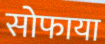
सोफाया